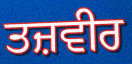
ਤਜ਼ਵੀਰ